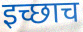
इच्छाच